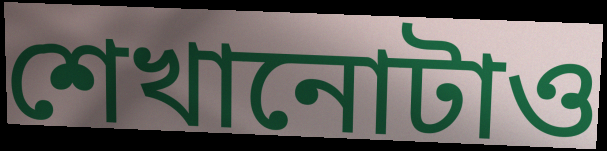
শেখানোটাও